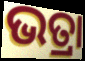
ଭତ୍ରା